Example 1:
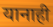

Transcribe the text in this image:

यानाही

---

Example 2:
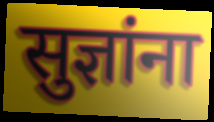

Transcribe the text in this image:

सुज्ञांना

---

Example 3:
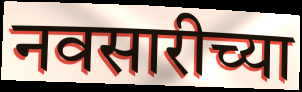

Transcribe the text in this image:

नवसारीच्या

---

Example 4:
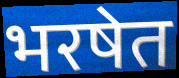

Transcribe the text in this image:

भरषेत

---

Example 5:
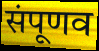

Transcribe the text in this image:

संपूणव